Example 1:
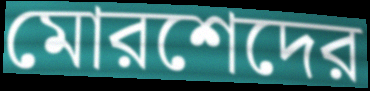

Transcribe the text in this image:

মোরশেদের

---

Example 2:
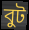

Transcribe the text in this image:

বুট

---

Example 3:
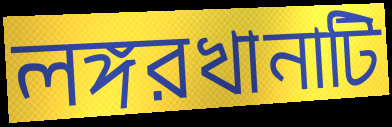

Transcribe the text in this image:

লঙ্গরখানাটি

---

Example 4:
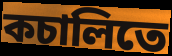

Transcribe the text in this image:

কচালিতে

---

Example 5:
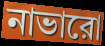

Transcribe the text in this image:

নাভারো